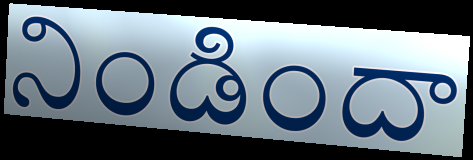
నిండిందా